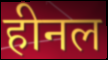
हीनल